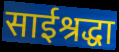
साईश्रद्धा